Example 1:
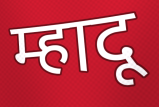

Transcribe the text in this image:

म्हादू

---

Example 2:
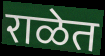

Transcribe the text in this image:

राळेत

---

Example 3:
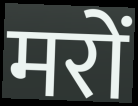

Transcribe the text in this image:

मरों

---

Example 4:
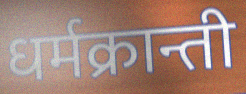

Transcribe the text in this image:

धर्मक्रान्ती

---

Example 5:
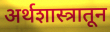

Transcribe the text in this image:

अर्थशास्त्रातून